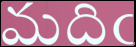
మదిఁ